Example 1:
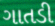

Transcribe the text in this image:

ગાતડી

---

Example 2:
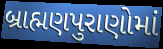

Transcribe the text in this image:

બ્રાહ્મણપુરાણોમાં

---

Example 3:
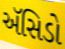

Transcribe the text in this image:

ઍસિડો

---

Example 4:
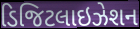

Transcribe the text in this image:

ડિજિટલાઇઝેશન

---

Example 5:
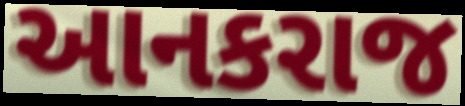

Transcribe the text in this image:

આનકરાજ